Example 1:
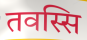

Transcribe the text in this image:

तवस्सि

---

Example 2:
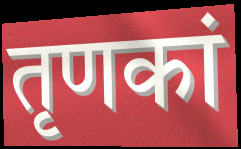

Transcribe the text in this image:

तृणकां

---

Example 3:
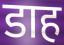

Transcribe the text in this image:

डाह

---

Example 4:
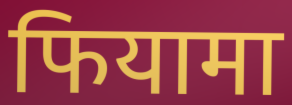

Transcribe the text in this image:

फियामा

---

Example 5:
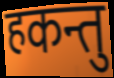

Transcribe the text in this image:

हकन्तु